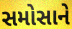
સમોસાને